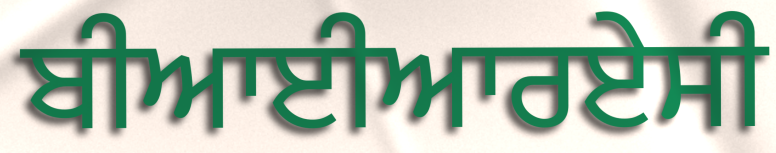
ਬੀਆਈਆਰਏਸੀ